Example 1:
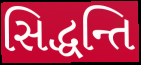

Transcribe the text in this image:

સિદ્ધન્તિ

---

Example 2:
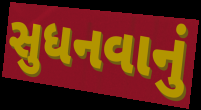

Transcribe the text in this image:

સુધનવાનું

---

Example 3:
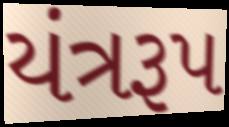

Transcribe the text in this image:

યંત્રરૂપ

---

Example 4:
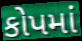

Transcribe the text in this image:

કોપમાં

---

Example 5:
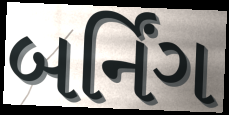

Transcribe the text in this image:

બર્નિંગ